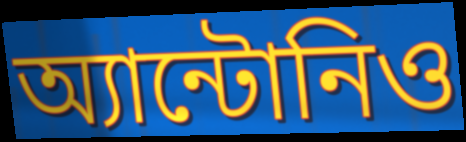
অ্যান্টোনিও